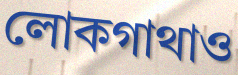
লোকগাথাও